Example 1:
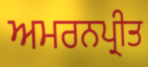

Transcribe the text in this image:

ਅਮਰਨਪ੍ਰੀਤ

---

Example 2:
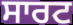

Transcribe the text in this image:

ਸਾਰਟ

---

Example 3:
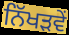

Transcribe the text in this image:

ਨਿੱਖੜਵੇਂ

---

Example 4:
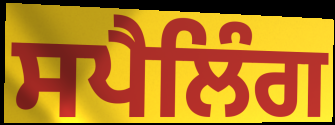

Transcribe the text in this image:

ਸਪੈਲਿੰਗ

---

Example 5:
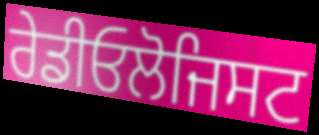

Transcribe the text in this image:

ਰੇਡੀਓਲੋਜਿਸਟ